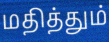
மதித்தும்